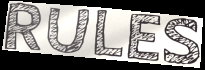
RULES